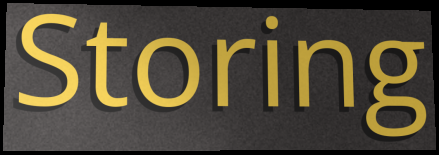
Storing